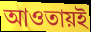
আওতায়ই